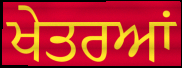
ਖੇਤਰਆਂ